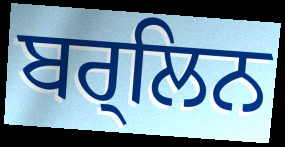
ਬਰ੍ਲਿਨ